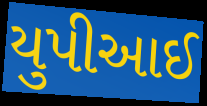
યુપીઆઈ